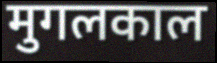
मुगलकाल